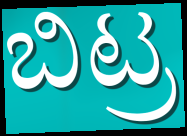
ಬಿಟ್ರ